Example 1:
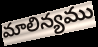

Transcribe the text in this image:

మాలిన్యము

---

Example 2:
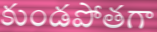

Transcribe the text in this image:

కుండపోతగా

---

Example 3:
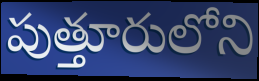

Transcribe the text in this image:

పుత్తూరులోని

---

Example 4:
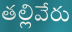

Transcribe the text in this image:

తల్లివేరు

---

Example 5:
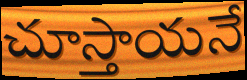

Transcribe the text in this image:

చూస్తాయనే